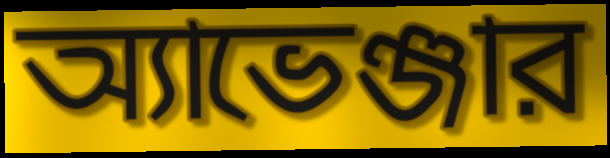
অ্যাভেঞ্জার